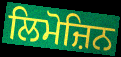
ਲਿਮੋਜ਼ਿਨ